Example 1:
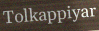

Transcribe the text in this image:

Tolkappiyar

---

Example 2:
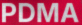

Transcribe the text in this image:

PDMA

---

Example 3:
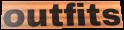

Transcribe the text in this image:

outfits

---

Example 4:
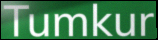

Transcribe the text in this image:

Tumkur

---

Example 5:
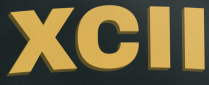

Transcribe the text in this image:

XCII